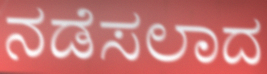
ನಡೆಸಲಾದ